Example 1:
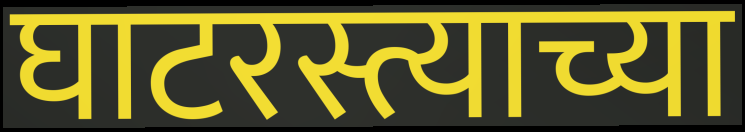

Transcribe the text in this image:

घाटरस्त्याच्या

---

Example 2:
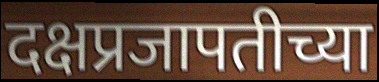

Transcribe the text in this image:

दक्षप्रजापतीच्या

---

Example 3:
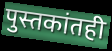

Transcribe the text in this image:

पुस्तकांतही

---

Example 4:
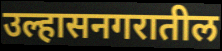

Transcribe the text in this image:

उल्हासनगरातील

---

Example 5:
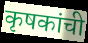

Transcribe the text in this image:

कृषकांची